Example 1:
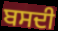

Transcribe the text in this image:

ਬਸਦੀ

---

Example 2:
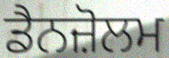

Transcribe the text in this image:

ਡੈਨਜ਼ੋਲਮ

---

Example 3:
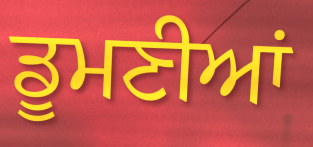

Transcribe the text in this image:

ਡੂਮਣੀਆਂ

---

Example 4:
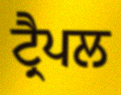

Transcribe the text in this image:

ਟ੍ਰੈਪਲ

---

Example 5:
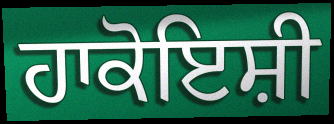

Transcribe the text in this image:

ਹਾਕੋਇਸ਼ੀ